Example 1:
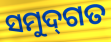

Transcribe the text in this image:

ସମୁଦ୍‌ଗତ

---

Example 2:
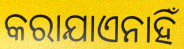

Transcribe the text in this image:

କରାଯାଏନାହିଁ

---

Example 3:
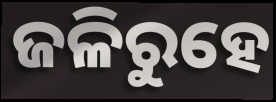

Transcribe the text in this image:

ଜଳିରୁହେ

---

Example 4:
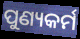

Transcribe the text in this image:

ପୁଣ୍ୟକର୍ମ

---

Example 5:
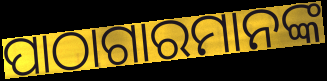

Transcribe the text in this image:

ପାଠାଗାରମାନଙ୍କ